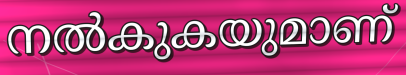
നൽകുകയുമാണ്